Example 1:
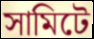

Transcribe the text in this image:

সামিটে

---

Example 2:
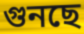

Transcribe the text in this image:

গুনছে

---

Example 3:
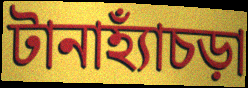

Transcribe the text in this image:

টানাহ্যাঁচড়া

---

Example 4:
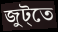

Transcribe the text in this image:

জুট্তে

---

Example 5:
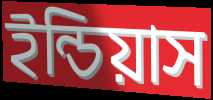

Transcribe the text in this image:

ইন্ডিয়াস